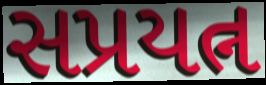
સપ્રયત્ન